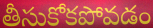
తీసుకోకపోవడం